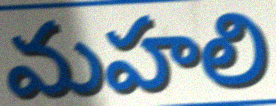
మహలి